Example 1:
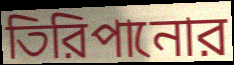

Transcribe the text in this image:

তিরিপানোর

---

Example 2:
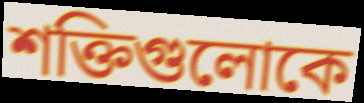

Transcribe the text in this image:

শক্তিগুলোকে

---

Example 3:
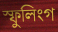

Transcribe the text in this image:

স্ফুলিংগ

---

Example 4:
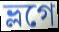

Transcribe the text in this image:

ভ্লগে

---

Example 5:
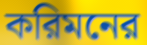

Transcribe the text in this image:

করিমনের